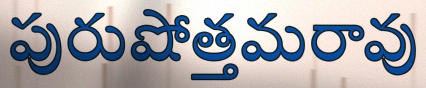
పురుషోత్తమరావు